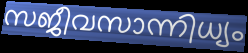
സജീവസാന്നിധ്യം